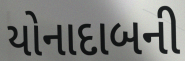
યોનાદાબની